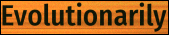
Evolutionarily